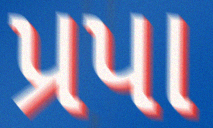
પ્રપા